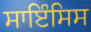
ਸਾਇੰਸਿਸ